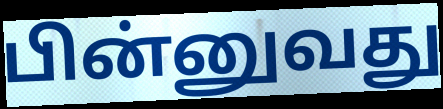
பின்னுவது